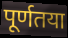
पूर्णतया